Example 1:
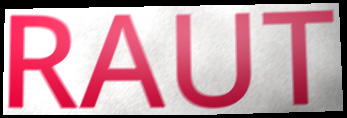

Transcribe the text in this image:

RAUT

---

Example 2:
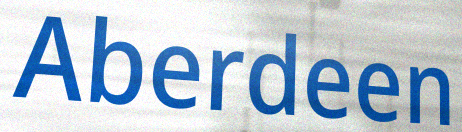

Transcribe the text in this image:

Aberdeen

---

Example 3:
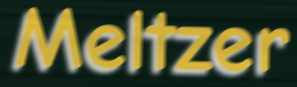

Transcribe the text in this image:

Meltzer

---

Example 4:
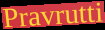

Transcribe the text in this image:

Pravrutti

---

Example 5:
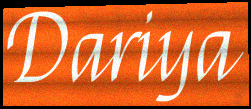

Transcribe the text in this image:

Dariya